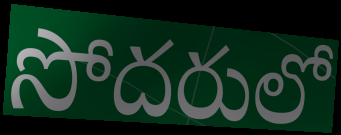
సోదరులో